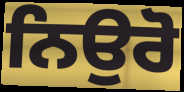
ਨਿਉਰੋ